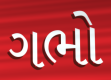
ગભો